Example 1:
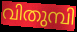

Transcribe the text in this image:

വിതുമ്പി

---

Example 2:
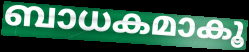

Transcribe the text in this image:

ബാധകമാകൂ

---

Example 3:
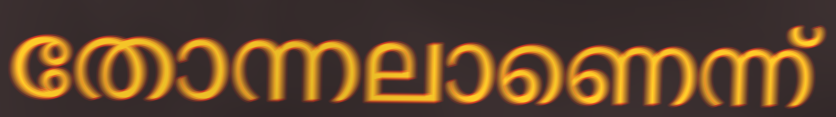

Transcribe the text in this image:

തോന്നലാണെന്ന്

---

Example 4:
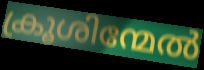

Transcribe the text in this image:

ക്രൂശിന്മേൽ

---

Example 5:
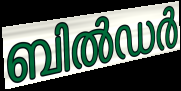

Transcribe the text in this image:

ബിൽഡർ